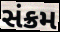
સંક્રમ